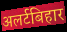
अलर्टबिहार